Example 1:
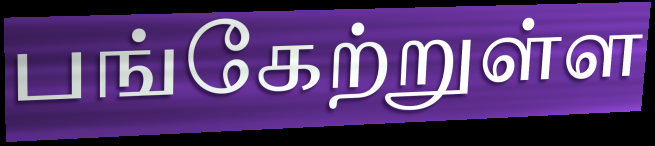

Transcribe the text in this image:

பங்கேற்றுள்ள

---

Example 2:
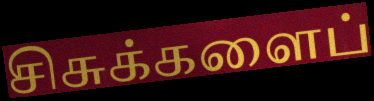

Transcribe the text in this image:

சிசுக்களைப்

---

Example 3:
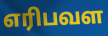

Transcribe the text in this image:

எரிபவள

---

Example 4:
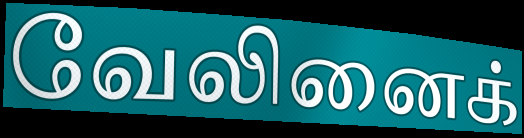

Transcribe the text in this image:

வேலினைக்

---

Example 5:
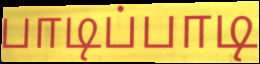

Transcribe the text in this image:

பாடிப்பாடி